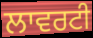
ਲਾਵਰਟੀ